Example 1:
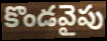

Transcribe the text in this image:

కొండవైపు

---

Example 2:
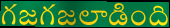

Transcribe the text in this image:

గజగజలాడింది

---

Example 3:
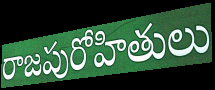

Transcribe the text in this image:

రాజపురోహితులు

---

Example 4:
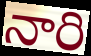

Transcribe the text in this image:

నారి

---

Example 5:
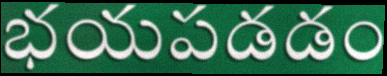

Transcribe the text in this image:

భయపడడం